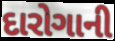
દારોગાની